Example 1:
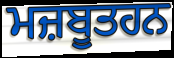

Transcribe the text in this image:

ਮਜ਼ਬੂਤਹਨ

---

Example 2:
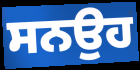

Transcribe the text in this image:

ਸਨਉਹ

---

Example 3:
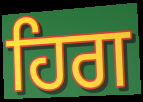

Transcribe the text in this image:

ਹਿਗ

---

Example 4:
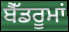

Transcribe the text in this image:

ਬੈੱਡਰੂਮਾਂ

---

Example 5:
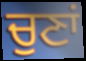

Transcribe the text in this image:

ਚੁਣਾਂ